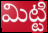
మిట్టి